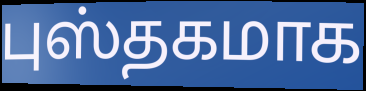
புஸ்தகமாக